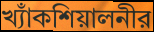
খ্যাঁকশিয়ালনীর